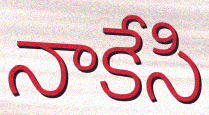
నాకేసి